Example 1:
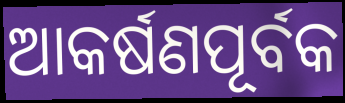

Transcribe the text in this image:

ଆକର୍ଷଣପୂର୍ବକ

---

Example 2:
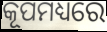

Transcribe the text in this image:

କୂପମଧ୍ୟରେ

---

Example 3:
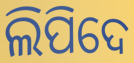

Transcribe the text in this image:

ଲିପିଦେ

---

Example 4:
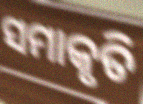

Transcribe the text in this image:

ସମାକୃତି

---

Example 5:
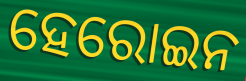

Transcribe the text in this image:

ହେରୋଇନ